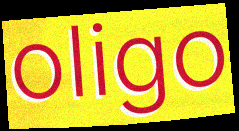
oligo